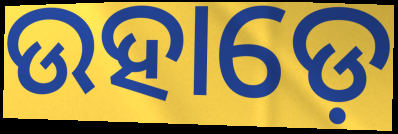
ଉହାଡ଼େ